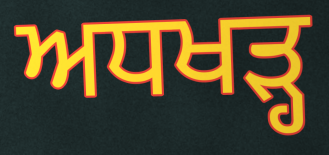
ਅਧਖੜ੍ਹ